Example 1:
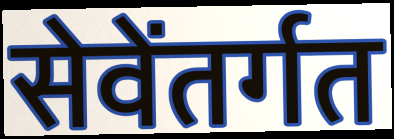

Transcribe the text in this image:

सेवेंतर्गत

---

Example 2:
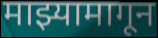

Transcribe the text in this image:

माझ्यामागून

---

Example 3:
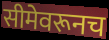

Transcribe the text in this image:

सीमेवरूनच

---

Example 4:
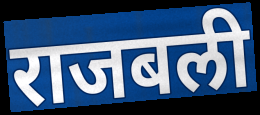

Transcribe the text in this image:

राजबली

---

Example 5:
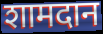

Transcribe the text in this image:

शामदान